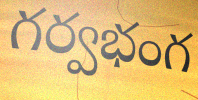
గర్వభంగ